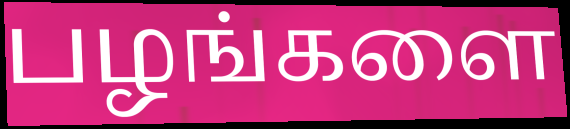
பழங்களை